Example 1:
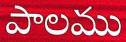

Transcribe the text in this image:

పాలము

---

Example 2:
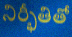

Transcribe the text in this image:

నిర్భీతితో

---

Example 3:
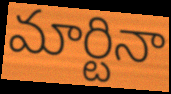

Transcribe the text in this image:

మార్టినా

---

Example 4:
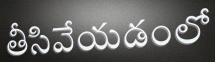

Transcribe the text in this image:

తీసివేయడంలో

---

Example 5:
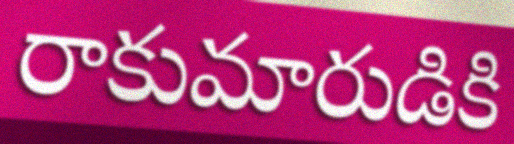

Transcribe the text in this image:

రాకుమారుడికి